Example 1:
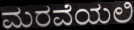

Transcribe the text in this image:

ಮರವೆಯಲಿ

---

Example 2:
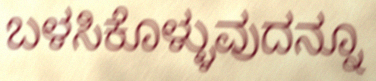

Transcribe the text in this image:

ಬಳಸಿಕೊಳ್ಳುವುದನ್ನೂ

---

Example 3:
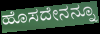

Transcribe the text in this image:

ಹೊಸದೇನನ್ನೂ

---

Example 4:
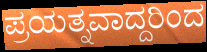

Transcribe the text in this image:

ಪ್ರಯತ್ನವಾದ್ದರಿಂದ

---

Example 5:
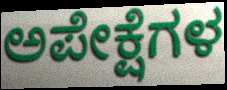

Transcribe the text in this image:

ಅಪೇಕ್ಷೆಗಳ